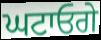
ਘਟਾਓਗੇ